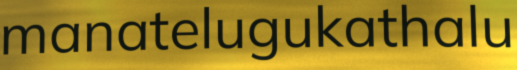
manatelugukathalu